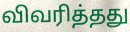
விவரித்தது